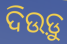
ଦିଉଡ଼ୁ